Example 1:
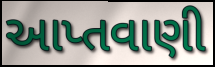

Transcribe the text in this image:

આપ્તવાણી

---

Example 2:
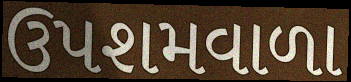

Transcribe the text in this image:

ઉપશમવાળા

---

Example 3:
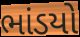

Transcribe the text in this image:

ભાંડયો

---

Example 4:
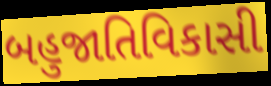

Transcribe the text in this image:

બહુજાતિવિકાસી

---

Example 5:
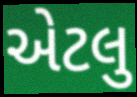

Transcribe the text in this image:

એટલુ